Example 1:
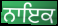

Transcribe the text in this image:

ਨਾਇਕ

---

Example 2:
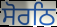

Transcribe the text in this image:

ਸੋਰਠਿ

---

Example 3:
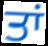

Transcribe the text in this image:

ਤਾਂ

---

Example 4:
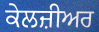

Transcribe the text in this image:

ਕੇਲਜ਼ੀਅਰ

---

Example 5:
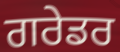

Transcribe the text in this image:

ਗਰੇਡਰ